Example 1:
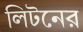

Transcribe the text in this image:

লিটনের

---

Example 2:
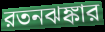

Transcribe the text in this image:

রতনঝঙ্কার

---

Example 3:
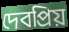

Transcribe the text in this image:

দেবপ্রিয়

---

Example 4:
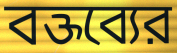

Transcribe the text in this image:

বক্তব্যের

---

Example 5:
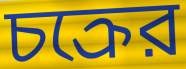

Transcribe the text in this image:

চক্রের